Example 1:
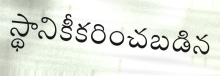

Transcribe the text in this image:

స్థానికీకరించబడిన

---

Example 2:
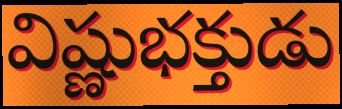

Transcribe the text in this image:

విష్ణుభక్తుడు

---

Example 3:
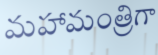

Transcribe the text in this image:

మహామంత్రిగా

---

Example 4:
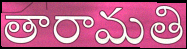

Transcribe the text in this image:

తారామతి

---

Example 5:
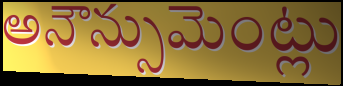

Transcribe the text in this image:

అనౌన్సుమెంట్లు